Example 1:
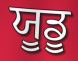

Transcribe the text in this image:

ਯੂਡੂ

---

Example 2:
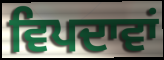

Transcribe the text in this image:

ਵਿਪਦਾਵਾਂ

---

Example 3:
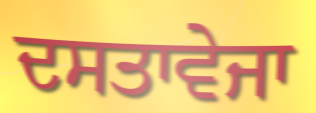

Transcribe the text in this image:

ਦਸਤਾਵੇਜਾ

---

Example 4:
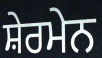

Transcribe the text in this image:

ਸ਼ੇਰਮੇਨ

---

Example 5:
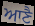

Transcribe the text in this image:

ਆਣੈ